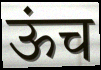
ऊंच